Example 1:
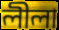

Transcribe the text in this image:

লীলা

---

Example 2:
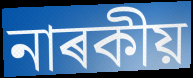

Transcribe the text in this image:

নাৰকীয়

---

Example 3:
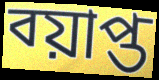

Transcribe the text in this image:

ব্য়াপ্ত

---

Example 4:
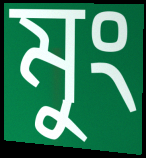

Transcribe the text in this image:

মুং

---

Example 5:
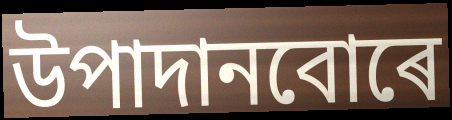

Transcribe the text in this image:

উপাদানবোৰে